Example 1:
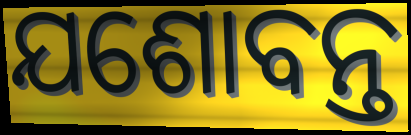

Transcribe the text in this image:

ଯଶୋବନ୍ତ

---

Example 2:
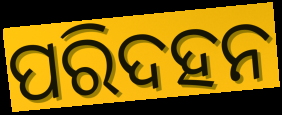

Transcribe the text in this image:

ପରିଦହନ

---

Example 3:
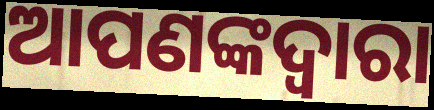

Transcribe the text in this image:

ଆପଣଙ୍କଦ୍ବାରା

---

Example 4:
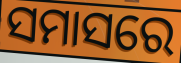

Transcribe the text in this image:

ସମାସରେ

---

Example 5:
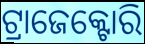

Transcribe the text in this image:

ଟ୍ରାଜେକ୍ଟୋରି